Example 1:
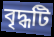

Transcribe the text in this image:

বৃদ্ধটি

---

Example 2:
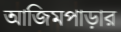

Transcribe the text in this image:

আজিমপাড়ার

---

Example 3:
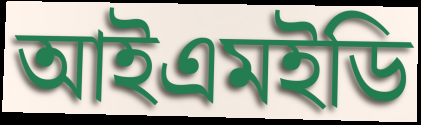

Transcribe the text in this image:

আইএমইডি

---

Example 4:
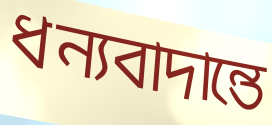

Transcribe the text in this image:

ধন্যবাদান্তে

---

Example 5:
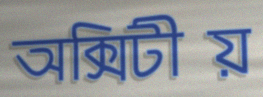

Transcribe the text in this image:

অক্সিটীয়